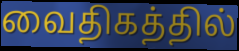
வைதிகத்தில்